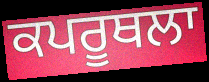
ਕਪਰੂਥਲਾ